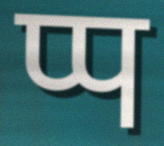
प्प